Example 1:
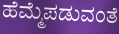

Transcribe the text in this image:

ಹೆಮ್ಮೆಪಡುವಂತೆ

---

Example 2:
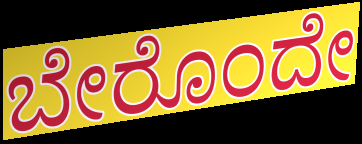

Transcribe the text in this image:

ಬೇರೊಂದೇ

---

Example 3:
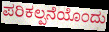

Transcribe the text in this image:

ಪರಿಕಲ್ಪನೆಯೊಂದು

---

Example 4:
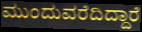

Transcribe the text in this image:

ಮುಂದುವರೆದಿದ್ದಾರೆ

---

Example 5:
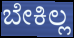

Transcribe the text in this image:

ಬೇಕಿಲ್ಲ